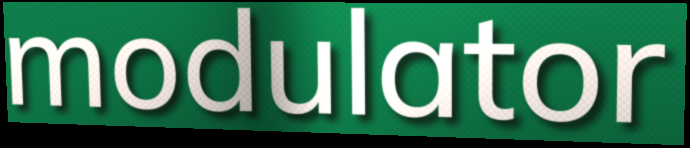
modulator